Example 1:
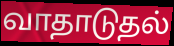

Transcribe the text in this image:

வாதாடுதல்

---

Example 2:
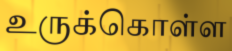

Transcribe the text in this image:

உருக்கொள்ள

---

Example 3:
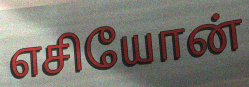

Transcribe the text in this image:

எசியோன்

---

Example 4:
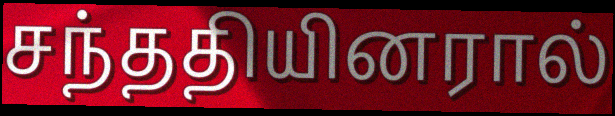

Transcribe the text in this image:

சந்ததியினரால்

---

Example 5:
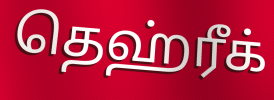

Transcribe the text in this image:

தெஹ்ரீக்